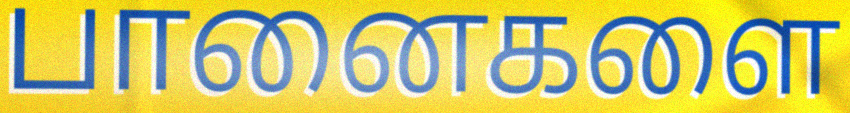
பானைகளை